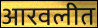
आरवलीत